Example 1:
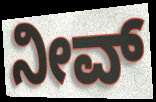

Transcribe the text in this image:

ನೀವ್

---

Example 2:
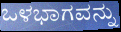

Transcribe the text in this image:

ಒಳಭಾಗವನ್ನು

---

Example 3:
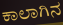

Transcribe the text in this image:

ಕಾಲಾಗಿನ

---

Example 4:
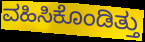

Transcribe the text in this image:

ವಹಿಸಿಕೊಂಡಿತ್ತು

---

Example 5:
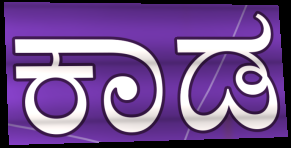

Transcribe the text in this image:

ಕಾಡ